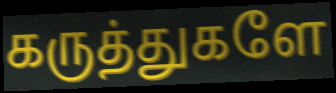
கருத்துகளே